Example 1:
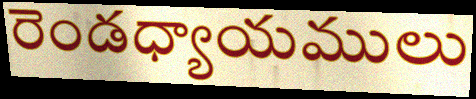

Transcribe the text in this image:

రెండధ్యాయములు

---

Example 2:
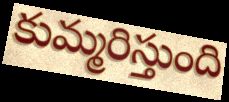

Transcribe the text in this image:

కుమ్మరిస్తుంది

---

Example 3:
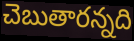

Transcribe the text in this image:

చెబుతారన్నది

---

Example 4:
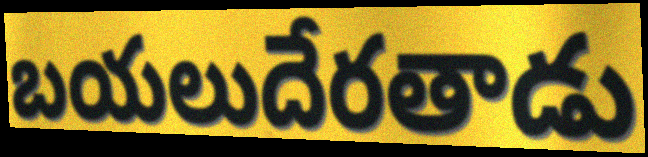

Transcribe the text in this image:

బయలుదేరతాడు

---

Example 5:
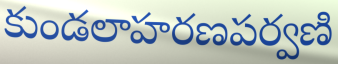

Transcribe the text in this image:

కుండలాహరణపర్వణి